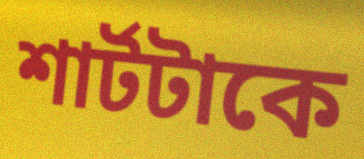
শার্টটাকে